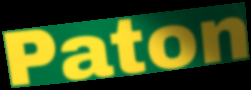
Paton